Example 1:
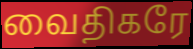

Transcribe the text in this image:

வைதிகரே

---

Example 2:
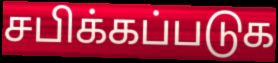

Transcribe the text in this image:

சபிக்கப்படுக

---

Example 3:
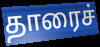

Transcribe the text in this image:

தாரைச்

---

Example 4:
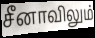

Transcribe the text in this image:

சீனாவிலும்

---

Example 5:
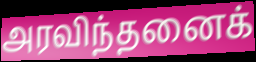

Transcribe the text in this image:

அரவிந்தனைக்